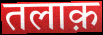
तलाक़